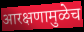
आरक्षणामुळेच